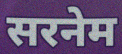
सरनेम